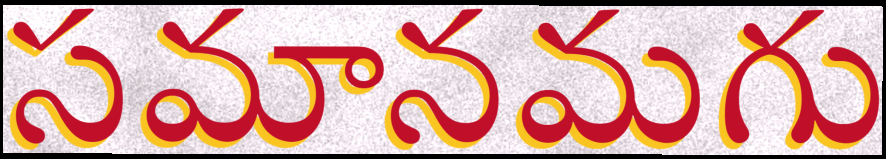
సమానమగు